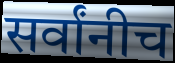
सर्वांनीच